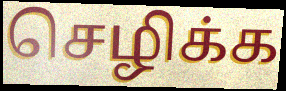
செழிக்க